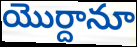
యొర్దానూ